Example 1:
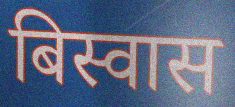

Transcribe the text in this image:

बिस्वास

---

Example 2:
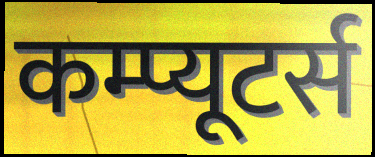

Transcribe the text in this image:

कम्प्यूटर्स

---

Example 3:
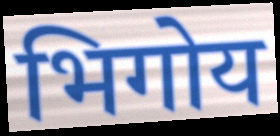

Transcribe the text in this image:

भिगोय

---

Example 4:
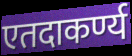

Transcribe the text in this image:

एतदाकर्ण्य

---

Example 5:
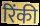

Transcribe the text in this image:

रिंकी